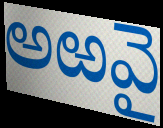
అఱవై